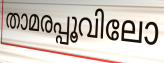
താമരപ്പൂവിലോ